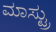
ಮಾಸ್ಟ್ರು